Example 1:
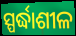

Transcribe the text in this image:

ସ୍ପର୍ଦ୍ଧାଶୀଳ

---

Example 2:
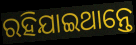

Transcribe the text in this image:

ରହିଯାଇଥାନ୍ତେ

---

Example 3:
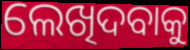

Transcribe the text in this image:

ଲେଖିଦବାକୁ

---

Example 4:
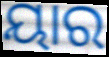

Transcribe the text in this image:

ୟାର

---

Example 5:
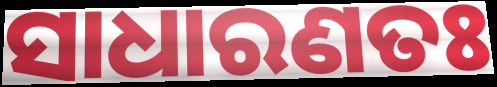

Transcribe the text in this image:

ସାଧାରଣତଃ